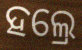
ହଲ୍ରେ